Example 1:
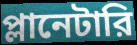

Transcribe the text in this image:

প্লানেটারি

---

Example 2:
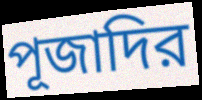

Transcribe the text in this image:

পূজাদির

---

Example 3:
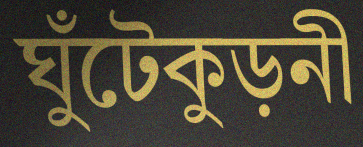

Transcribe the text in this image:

ঘুঁটেকুড়নী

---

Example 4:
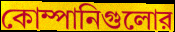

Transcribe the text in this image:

কোম্পানিগুলোর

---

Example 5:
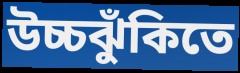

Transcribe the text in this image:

উচ্চঝুঁকিতে